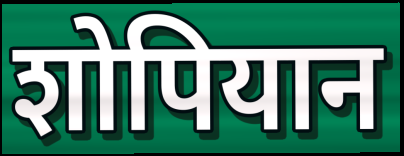
शोपियान